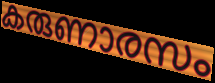
കരുണാരസം